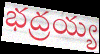
భద్రయ్య